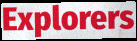
Explorers